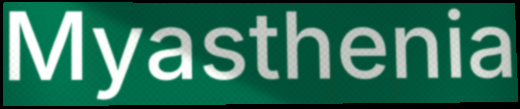
Myasthenia